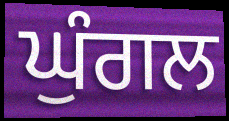
ਘੁੰਗਲ